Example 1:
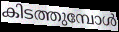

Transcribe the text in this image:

കിടത്തുമ്പോൾ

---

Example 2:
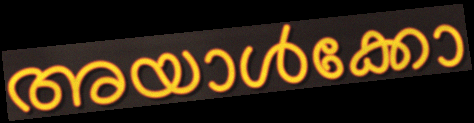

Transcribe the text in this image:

അയാൾക്കോ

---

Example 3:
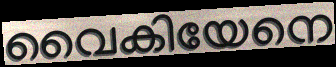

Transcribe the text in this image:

വൈകിയേനെ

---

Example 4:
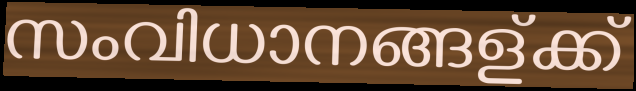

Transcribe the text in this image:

സംവിധാനങ്ങള്ക്ക്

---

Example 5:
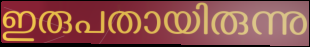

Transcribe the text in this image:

ഇരുപതായിരുന്നു